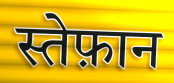
स्तेफ़ान